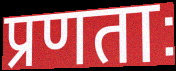
प्रणताः